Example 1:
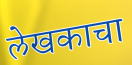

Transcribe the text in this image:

लेखकाचा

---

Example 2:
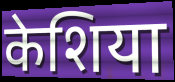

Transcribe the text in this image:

केशिया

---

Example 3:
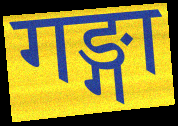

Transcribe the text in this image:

गङ्गा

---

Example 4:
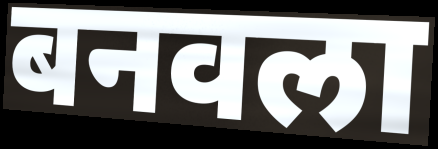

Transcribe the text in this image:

बनवला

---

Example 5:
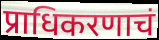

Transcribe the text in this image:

प्राधिकरणाचं